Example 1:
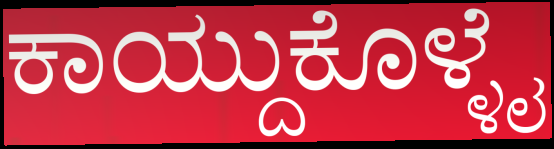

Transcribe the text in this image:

ಕಾಯ್ದುಕೊಳ್ಳೈ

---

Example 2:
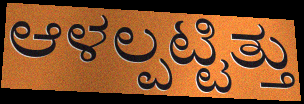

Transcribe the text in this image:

ಆಳಲ್ಪಟ್ಟಿತ್ತು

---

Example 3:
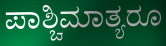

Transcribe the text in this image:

ಪಾಶ್ಚಿಮಾತ್ಯರೂ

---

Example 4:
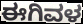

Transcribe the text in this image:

ಈಗಿವಳ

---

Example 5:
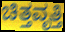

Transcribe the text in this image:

ಚಿತ್ತವೃತ್ತಿ